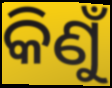
କିଣୁଁ